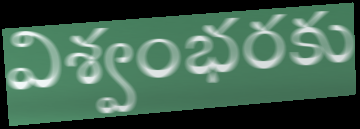
విశ్వంభరకు